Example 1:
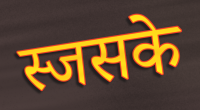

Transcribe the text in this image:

स्जसके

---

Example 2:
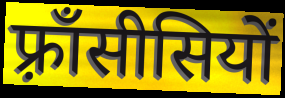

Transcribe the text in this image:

फ़्राँसीसियों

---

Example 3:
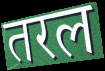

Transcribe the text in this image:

तरल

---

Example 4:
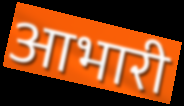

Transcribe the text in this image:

आभारी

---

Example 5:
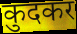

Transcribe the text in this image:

कुदकर